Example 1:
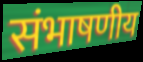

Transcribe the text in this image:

संभाषणीय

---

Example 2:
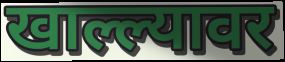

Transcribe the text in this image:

खाल्ल्यावर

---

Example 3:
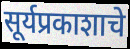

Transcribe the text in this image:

सूर्यप्रकाशाचे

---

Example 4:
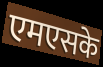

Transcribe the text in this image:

एमएसके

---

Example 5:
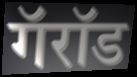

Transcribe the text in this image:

गॅरॉड